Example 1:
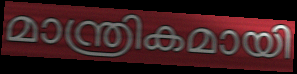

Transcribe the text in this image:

മാന്ത്രികമായി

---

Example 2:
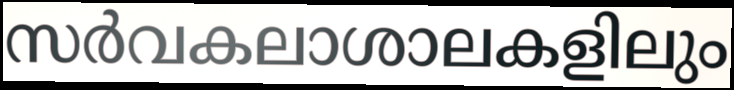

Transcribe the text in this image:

സർവകലാശാലകളിലും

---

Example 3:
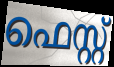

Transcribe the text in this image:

ഫെസ്റ്റ്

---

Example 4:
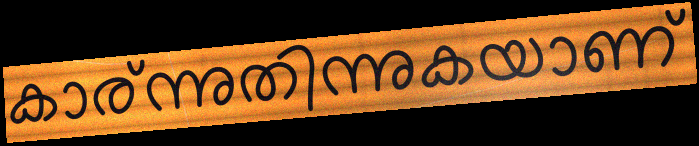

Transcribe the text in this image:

കാര്ന്നുതിന്നുകയാണ്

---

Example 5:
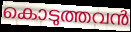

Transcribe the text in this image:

കൊടുത്തവൻ